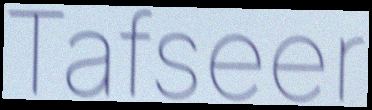
Tafseer